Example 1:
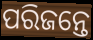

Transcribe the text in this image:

ପରିଜନ୍ତେ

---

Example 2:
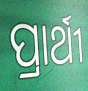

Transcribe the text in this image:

ପ୍ରାର୍ଥୀ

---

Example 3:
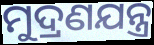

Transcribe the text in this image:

ମୁଦ୍ରଣଯନ୍ତ୍ର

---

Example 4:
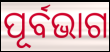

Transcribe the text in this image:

ପୂର୍ବଭାଗ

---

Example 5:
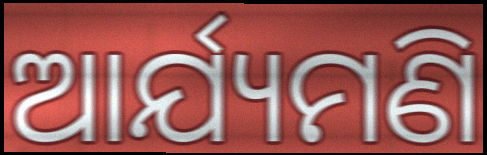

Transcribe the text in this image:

ଆର୍ଯ୍ୟମଣି